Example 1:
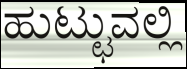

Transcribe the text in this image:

ಹುಟ್ಟುವಲ್ಲಿ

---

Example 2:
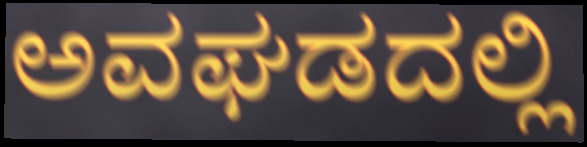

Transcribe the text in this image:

ಅವಘಡದಲ್ಲಿ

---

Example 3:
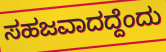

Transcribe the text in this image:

ಸಹಜವಾದದ್ದೆಂದು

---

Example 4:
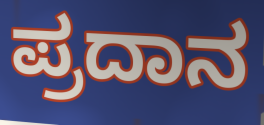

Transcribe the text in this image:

ಪ್ರದಾನ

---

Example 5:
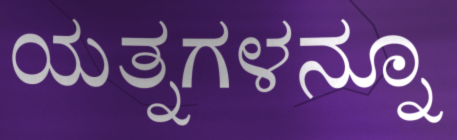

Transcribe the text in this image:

ಯತ್ನಗಳನ್ನೂ